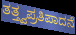
ತತ್ತ್ವಪ್ರತಿಪಾದನೆ